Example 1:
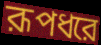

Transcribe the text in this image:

রূপধরে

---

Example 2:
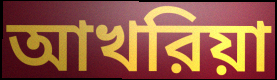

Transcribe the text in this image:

আখরিয়া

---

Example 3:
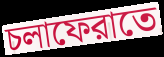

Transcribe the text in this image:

চলাফেরাতে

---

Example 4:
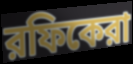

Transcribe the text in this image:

রফিকেরা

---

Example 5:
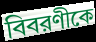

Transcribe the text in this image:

বিবরণীকে